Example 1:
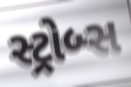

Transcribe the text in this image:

સ્ટ્રોબ્સ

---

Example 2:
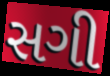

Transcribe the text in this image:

સગી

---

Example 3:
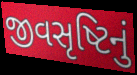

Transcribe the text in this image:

જીવસૃષ્ટિનું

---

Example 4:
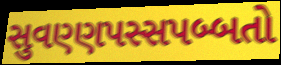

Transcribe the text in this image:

સુવણ્ણપસ્સપબ્બતો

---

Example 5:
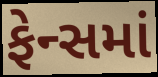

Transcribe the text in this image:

ફેન્સમાં